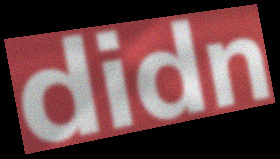
didn